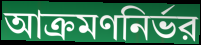
আক্রমণনির্ভর